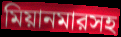
মিয়ানমারসহ